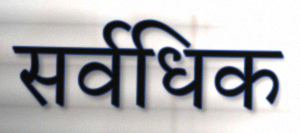
सर्वधिक